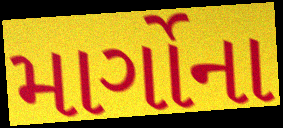
માર્ગોના